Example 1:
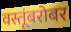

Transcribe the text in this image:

वस्तूंबरोबर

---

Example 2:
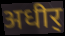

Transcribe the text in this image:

अधीर्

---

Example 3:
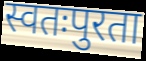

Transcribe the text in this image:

स्वतःपुरता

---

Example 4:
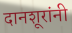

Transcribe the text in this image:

दानशूरांनी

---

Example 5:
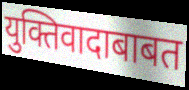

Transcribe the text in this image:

युक्तिवादाबाबत